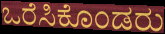
ಒರೆಸಿಕೊಂಡರು